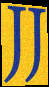
JJ